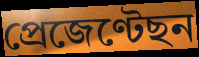
প্ৰেজেণ্টেছন